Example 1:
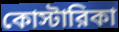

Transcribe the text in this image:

কোস্টারিকা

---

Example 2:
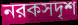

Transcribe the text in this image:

নরকসদৃশ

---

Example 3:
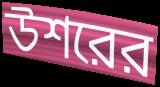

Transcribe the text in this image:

উশরের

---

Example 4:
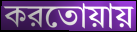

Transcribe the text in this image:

করতোয়ায়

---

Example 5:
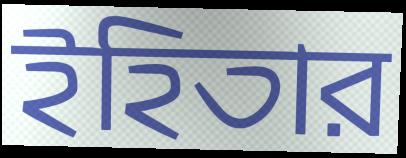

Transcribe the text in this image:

ইহিতার